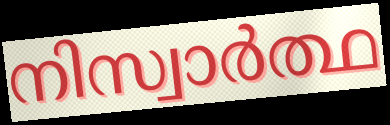
നിസ്വാർത്ഥ